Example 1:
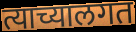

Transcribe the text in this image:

त्याच्यालगत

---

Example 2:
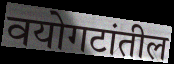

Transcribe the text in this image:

वयोगटांतील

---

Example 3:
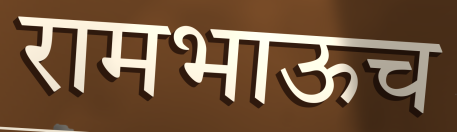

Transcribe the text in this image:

रामभाऊच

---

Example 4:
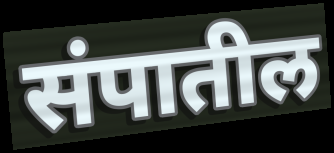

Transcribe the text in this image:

संपातील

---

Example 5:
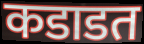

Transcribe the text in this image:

कडाडत